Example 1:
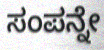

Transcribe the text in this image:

ಸಂಪನ್ನೇ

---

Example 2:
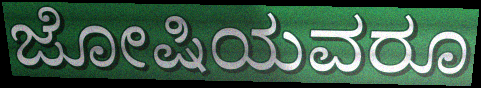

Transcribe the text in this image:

ಜೋಷಿಯವರೂ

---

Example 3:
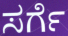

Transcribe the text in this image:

ಸರ್ಗೆ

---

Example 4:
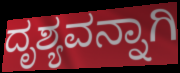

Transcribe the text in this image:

ದೃಶ್ಯವನ್ನಾಗಿ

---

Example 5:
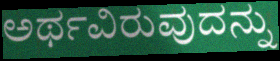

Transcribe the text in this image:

ಅರ್ಥವಿರುವುದನ್ನು